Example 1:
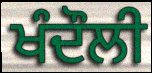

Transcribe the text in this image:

ਖੰਦੌਲੀ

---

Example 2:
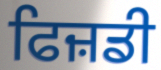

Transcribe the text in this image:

ਫਿਜ਼ਡੀ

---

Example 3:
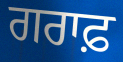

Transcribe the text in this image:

ਗਰਾਫ਼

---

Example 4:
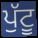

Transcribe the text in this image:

ਪੁੱਟੂ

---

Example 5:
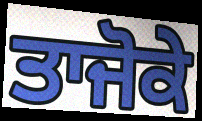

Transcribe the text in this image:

ਤਾਜੋਕੇ